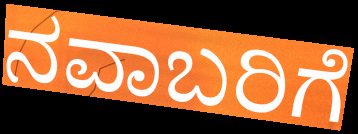
ನವಾಬರಿಗೆ